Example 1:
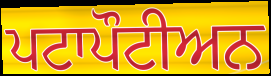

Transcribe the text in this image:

ਪਟਾਪੌਟੀਅਨ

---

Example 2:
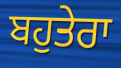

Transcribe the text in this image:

ਬਹੁਤੇਰਾ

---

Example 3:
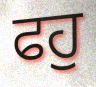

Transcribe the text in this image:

ਫਹੁ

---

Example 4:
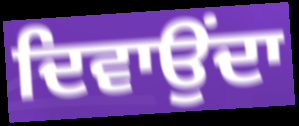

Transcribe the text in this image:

ਦਿਵਾਉਂਦਾ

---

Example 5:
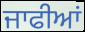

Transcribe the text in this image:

ਜਾਫੀਆਂ